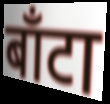
बाँटा